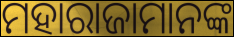
ମହାରାଜାମାନଙ୍କ